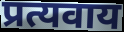
प्रत्यवाय